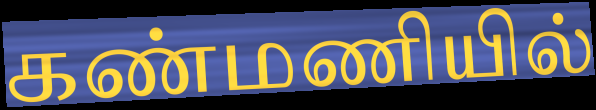
கண்மணியில்